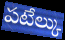
పటేల్కు